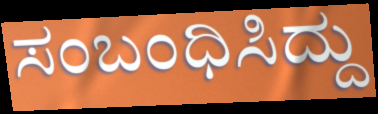
ಸಂಬಂಧಿಸಿದ್ದು